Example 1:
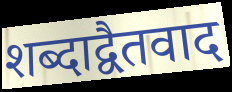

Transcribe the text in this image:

शब्दाद्वैतवाद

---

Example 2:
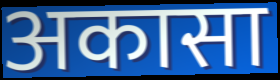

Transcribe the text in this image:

अकासा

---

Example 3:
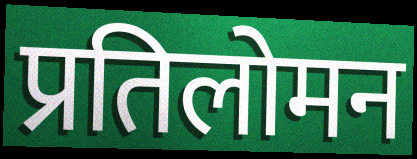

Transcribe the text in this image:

प्रतिलोमन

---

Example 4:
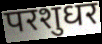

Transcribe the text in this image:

परशुधर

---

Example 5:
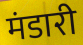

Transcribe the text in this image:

मंडारी